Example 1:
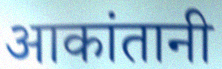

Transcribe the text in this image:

आकांतानी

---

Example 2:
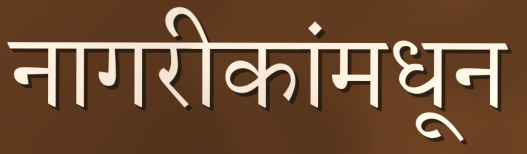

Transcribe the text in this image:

नागरीकांमधून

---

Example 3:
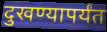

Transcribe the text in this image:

दुखण्यापर्यंत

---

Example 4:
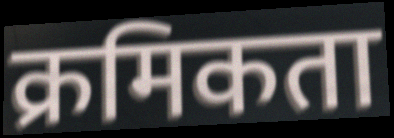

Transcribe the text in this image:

क्रमिकता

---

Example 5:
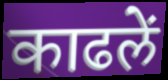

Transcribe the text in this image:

काढलें